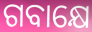
ଗବାକ୍ଷେ